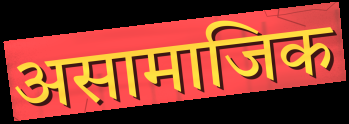
असामाजिक